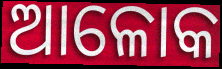
ଆଳୋକ